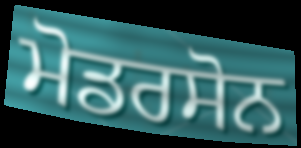
ਮੋਡਰਸੋਨ